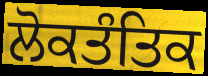
ਲੋਕਤੰਤਿਕ